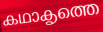
കഥാകൃത്തെ